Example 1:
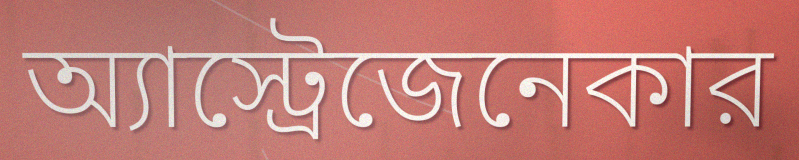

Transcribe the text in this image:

অ্যাস্ট্রেজেনেকার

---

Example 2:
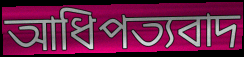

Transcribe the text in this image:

আধিপত্যবাদ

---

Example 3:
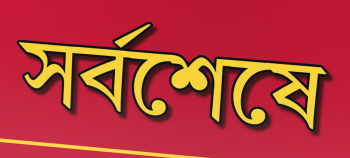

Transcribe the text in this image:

সর্বশেষে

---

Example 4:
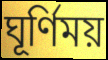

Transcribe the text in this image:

ঘূর্ণিময়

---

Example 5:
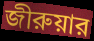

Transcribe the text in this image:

জীরুয়ার